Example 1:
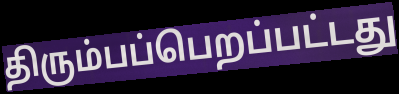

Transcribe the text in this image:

திரும்பப்பெறப்பட்டது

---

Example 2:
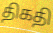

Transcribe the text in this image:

திகதி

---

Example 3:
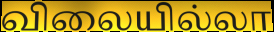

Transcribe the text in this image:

விலையில்லா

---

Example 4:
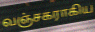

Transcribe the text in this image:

வஞ்சகராகிய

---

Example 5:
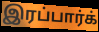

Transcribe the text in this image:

இரப்பார்க்